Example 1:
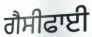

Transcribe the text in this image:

ਗੈਸੀਫਾਈ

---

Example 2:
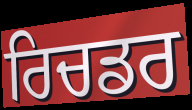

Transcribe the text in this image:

ਰਿਚਡਰ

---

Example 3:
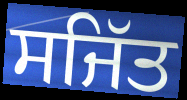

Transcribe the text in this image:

ਸਜਿੱਤ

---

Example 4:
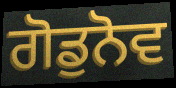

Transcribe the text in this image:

ਗੋਡੁਨੋਵ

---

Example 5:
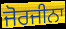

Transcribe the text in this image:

ਜੋਰਜੀਨਾ